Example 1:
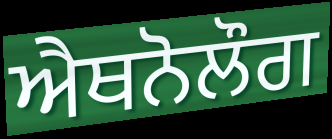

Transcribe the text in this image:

ਐਥਨੋਲੌਗ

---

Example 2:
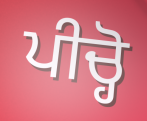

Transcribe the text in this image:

ਪੀਚ੍ਹੋ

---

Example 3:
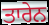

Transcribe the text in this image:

ਤਾਰੇਨ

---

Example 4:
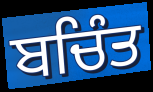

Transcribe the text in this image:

ਬਚਿੰਤ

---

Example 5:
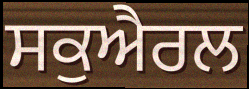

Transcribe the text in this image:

ਸਕੁਐਰਲ